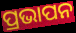
ପ୍ରଭାପନ